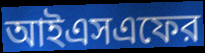
আইএসএফের